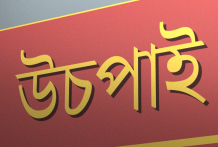
উচপাই